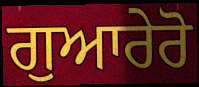
ਗੁਆਰੇਰੋ